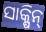
ସାକ୍ଷିନ୍